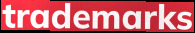
trademarks